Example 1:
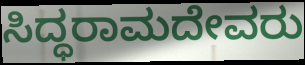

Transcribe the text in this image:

ಸಿದ್ಧರಾಮದೇವರು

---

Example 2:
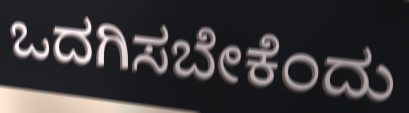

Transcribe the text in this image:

ಒದಗಿಸಬೇಕೆಂದು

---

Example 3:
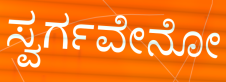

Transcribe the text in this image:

ಸ್ವರ್ಗವೇನೋ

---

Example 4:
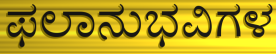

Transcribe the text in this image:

ಫಲಾನುಭವಿಗಳ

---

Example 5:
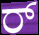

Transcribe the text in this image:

ರ್